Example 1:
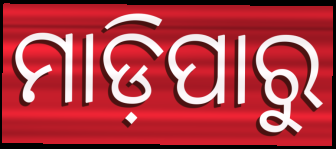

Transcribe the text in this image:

ମାଡ଼ିପାରୁ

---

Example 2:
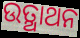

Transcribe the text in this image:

ଉତ୍ଥାଥନ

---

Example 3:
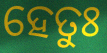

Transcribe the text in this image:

ହେତୁଃ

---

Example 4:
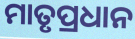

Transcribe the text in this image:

ମାତୃପ୍ରଧାନ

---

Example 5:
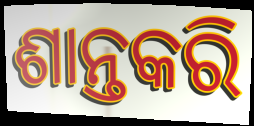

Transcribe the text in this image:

ଶାନ୍ତକରି